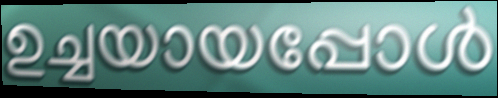
ഉച്ചയായപ്പോൾ